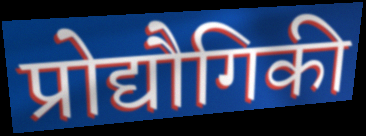
प्रोद्यौगिकी